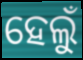
ହେଲୁଁ